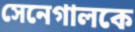
সেনেগালকে